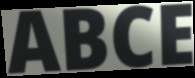
ABCE